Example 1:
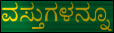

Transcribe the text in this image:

ವಸ್ತುಗಳನ್ನೂ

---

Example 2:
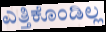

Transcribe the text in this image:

ಎತ್ತಿಕೊಂಡಿಲ್ಲ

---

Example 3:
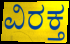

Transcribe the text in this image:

ವಿರಕ್ತ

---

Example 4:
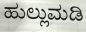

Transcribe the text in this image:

ಹುಲ್ಲುಮಡಿ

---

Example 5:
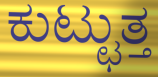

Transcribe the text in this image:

ಕುಟ್ಟುತ್ತ